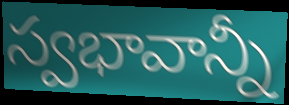
స్వభావాన్నీ